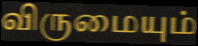
விருமையும்